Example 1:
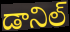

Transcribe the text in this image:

డానిల్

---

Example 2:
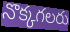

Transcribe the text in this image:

నొక్కగలరు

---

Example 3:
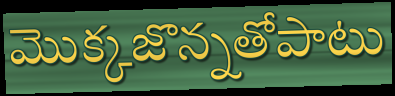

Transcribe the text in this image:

మొక్కజొన్నతోపాటు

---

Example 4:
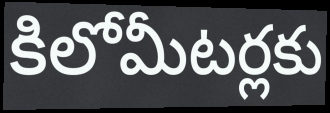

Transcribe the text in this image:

కిలోమీటర్లకు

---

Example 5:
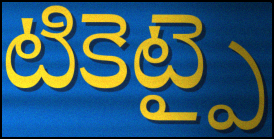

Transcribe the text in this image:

టికెట్పై